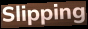
Slipping